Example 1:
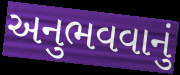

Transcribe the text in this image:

અનુભવવાનું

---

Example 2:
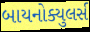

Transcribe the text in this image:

બાયનોક્યુલર્સ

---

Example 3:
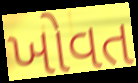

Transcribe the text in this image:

ખોવત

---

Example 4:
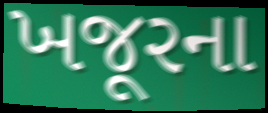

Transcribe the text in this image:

ખજૂરના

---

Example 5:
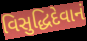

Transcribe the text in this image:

વિસુદ્ધિદેવાનં